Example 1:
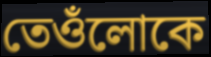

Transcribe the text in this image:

তেওঁলোকে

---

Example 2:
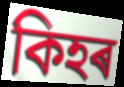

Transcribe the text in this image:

কিহৰ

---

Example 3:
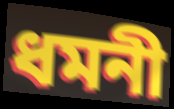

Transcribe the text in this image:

ধমনী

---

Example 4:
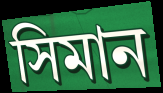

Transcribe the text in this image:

সিমান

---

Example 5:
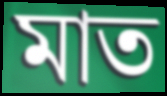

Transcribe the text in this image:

মাত